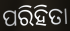
ପରିହିତା